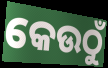
କେଉଠୁଁ